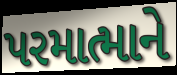
પરમાત્માને